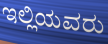
ಇಲ್ಲಿಯವರು